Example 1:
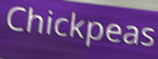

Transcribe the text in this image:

Chickpeas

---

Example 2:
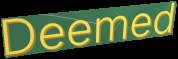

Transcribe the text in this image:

Deemed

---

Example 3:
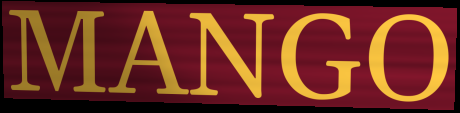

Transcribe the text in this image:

MANGO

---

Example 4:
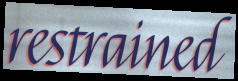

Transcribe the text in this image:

restrained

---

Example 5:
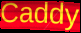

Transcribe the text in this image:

Caddy